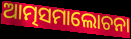
ଆତ୍ମସମାଲୋଚନା